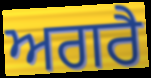
ਅਗਰੈ